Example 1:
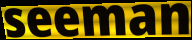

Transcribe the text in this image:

seeman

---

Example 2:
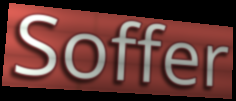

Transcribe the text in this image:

Soffer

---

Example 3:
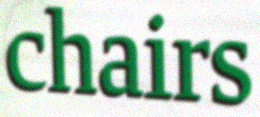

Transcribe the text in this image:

chairs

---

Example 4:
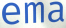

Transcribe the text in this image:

ema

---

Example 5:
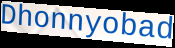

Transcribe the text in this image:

Dhonnyobad